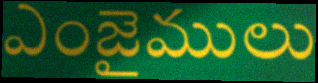
ఎంజైములు